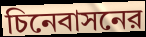
চিনেবাসনের